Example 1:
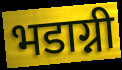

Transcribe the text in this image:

भडाग्नी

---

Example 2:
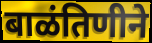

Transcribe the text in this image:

बाळंतिणीने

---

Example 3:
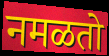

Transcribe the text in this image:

नमळतो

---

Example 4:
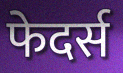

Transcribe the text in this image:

फेदर्स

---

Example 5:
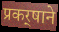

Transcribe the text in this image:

प्रकर्षाने